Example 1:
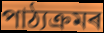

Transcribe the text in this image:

পাঠ্যক্ৰমৰ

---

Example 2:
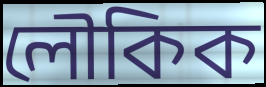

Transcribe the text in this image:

লৌকিক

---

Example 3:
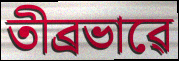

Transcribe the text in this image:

তীব্ৰভাৱে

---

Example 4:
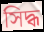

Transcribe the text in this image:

সিদ্ধ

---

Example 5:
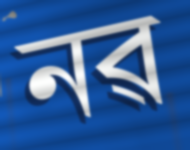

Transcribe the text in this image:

নৱ